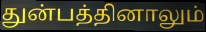
துன்பத்தினாலும்